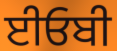
ਈਓਬੀ